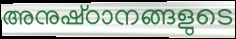
അനുഷ്‌ഠാനങ്ങളുടെ